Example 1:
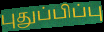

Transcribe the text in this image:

புதுப்பிப்பு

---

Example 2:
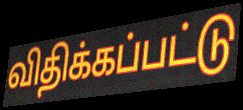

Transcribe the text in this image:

விதிக்கப்பட்டு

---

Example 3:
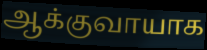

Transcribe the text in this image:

ஆக்குவாயாக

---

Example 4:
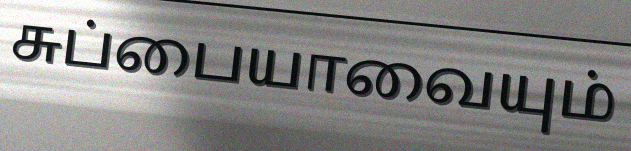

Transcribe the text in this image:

சுப்பையாவையும்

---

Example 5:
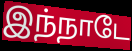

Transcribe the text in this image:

இந்நாடே